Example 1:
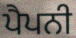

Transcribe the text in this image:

ਪੈਪਨੀ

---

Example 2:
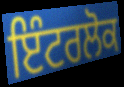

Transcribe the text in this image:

ਇੰਟਰਲੋਕ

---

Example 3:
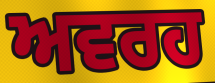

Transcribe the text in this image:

ਅਵਰਹ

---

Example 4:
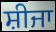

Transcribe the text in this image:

ਸ਼ੀਜਾ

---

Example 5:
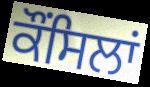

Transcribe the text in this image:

ਕੌਂਸਿਲਾਂ